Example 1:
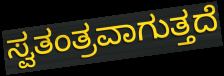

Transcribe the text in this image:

ಸ್ವತಂತ್ರವಾಗುತ್ತದೆ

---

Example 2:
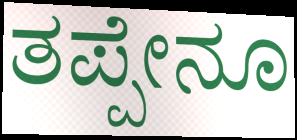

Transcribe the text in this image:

ತಪ್ಪೇನೂ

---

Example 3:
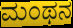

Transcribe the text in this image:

ಮಂಥನ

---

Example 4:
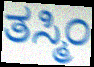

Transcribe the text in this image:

ತಸ್ಮಿಂ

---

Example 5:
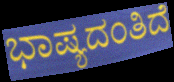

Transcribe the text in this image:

ಭಾಷ್ಯದಂತಿದೆ